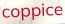
coppice